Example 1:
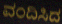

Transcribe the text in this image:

ವಂದಿಸಿದ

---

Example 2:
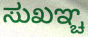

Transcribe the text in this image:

ಸುಖಞ್ಚ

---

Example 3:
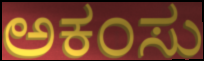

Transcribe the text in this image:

ಅಕಂಸು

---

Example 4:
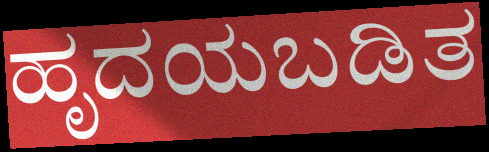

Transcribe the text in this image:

ಹೃದಯಬಡಿತ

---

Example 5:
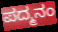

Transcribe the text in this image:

ಪದ್ಮನಂ